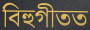
বিহুগীতত